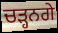
ਚੜ੍ਹਨਗੇ